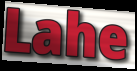
Lahe